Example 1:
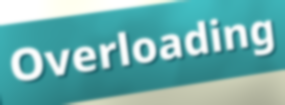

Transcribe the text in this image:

Overloading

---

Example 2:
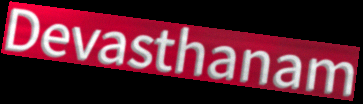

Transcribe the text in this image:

Devasthanam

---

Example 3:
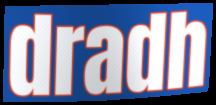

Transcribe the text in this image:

dradh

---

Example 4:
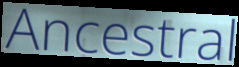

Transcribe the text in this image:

Ancestral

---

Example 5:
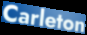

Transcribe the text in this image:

Carleton